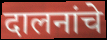
दालनांचे